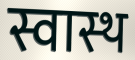
स्वास्थ